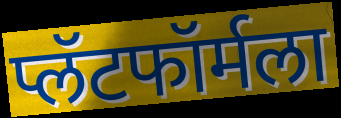
प्लॅटफॉर्मला